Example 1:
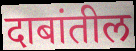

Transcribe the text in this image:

दाबांतील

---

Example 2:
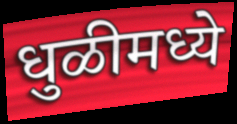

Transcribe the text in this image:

धुळीमध्ये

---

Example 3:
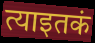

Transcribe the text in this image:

त्याइतकं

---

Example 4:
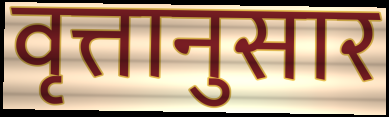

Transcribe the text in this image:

वृत्तानुसार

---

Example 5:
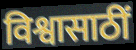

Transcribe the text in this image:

विश्वासाठीं